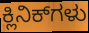
ಕ್ಲಿನಿಕ್‌ಗಳು